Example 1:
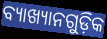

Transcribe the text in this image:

ବ୍ୟାଖ୍ୟାନଗୁଡ଼ିକ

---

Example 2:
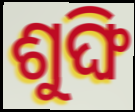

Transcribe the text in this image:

ଶୁଙ୍ଘି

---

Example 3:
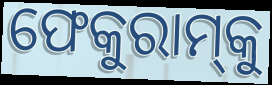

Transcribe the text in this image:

ଫେକୁରାମ୍‌କୁ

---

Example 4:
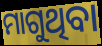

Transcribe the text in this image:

ମାଗୁଥିବା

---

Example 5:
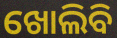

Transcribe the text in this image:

ଖୋଲିବି